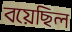
বয়েছিল